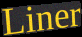
Liner